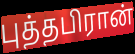
புத்தபிரான்